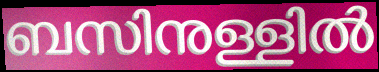
ബസിനുള്ളിൽ